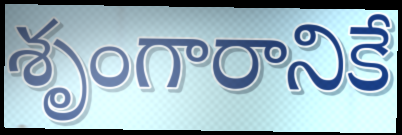
శృంగారానికే